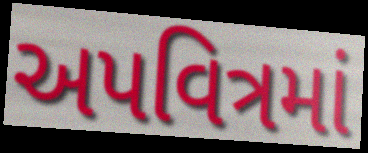
અપવિત્રમાં